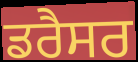
ਡਰੈਸਰ